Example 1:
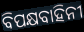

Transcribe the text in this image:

ବିପକ୍ଷବାହିନୀ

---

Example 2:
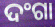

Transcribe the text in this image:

ଦଂଗା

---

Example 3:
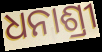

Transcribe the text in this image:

ଧନାଶ୍ରୀ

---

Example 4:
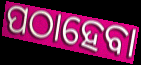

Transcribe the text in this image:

ପଠାହେବା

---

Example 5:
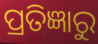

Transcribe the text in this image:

ପ୍ରତିଜ୍ଞାରୁ